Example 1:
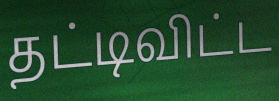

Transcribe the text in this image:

தட்டிவிட்ட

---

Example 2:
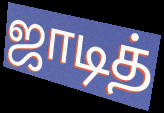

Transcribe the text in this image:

ஜாடித்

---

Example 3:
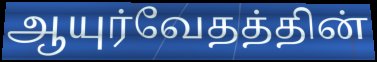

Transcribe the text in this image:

ஆயுர்வேதத்தின்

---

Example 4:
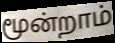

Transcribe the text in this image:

மூன்றாம்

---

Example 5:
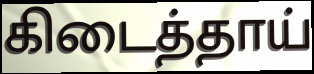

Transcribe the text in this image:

கிடைத்தாய்